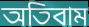
অতিবাম